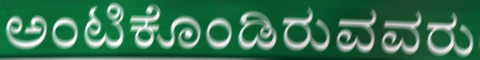
ಅಂಟಿಕೊಂಡಿರುವವರು